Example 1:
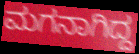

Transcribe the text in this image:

ಮಗನಾಗಿದ್ದ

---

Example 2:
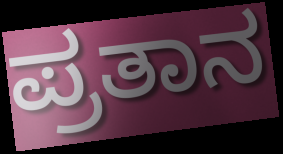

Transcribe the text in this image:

ಪ್ರತಾನ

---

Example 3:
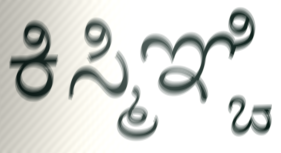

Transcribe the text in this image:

ಕಿಸ್ಮಿಞ್ಚಿ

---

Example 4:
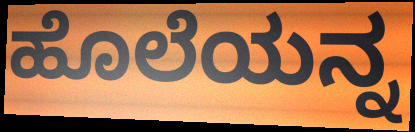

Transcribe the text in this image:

ಹೊಲೆಯನ್ನ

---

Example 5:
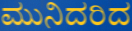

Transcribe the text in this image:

ಮುನಿದರಿದ